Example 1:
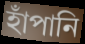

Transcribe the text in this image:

হাঁপানি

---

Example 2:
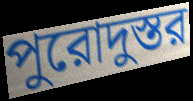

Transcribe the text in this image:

পুরোদুস্তর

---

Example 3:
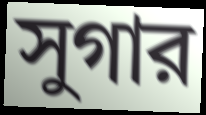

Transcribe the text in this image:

সুগার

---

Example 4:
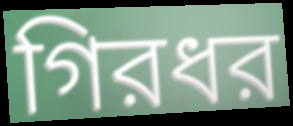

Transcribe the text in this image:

গিরধর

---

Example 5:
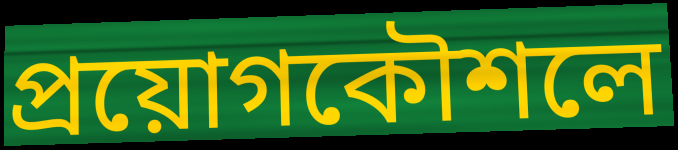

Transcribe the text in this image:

প্রয়োগকৌশলে